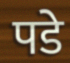
पडे